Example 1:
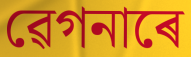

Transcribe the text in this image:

ৱেগনাৰে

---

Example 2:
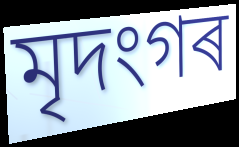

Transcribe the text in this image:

মৃদংগৰ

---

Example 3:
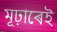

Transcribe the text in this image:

মূঢ়াৰেই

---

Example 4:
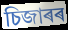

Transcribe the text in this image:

চিজাৰৰ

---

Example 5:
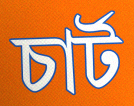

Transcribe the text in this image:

চাৰ্ট